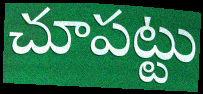
చూపట్టు